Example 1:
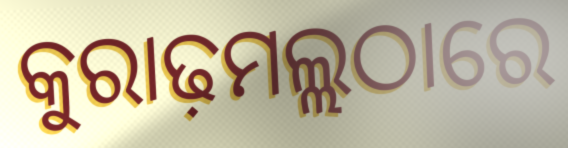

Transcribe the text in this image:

କୁରାଢ଼ମଲ୍ଲଠାରେ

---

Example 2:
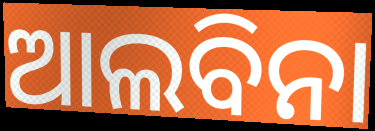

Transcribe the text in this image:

ଆଲବିନା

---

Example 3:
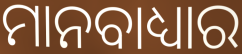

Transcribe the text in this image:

ମାନବାଧ୍ୟାର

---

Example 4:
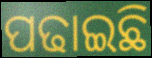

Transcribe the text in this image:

ପଢାଇଛି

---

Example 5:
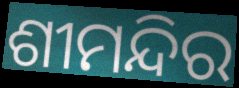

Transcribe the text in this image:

ଶୀମନ୍ଦିର